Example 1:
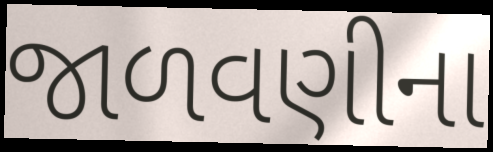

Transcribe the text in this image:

જાળવણીના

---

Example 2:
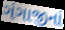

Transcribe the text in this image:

ગંગાજીનાં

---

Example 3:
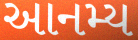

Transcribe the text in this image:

આનમ્ય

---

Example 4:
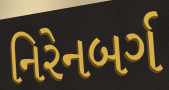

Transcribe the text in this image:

નિરેનબર્ગ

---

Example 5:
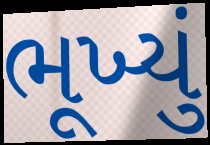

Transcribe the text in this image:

ભૂખ્યું